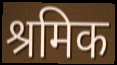
श्रमिक